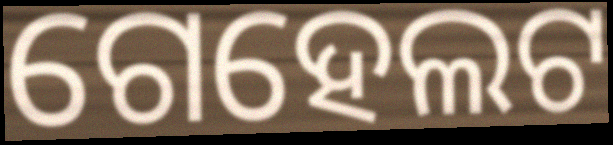
ଗେହେଲଟ